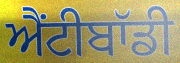
ਐਂਟੀਬਾੱਡੀ